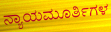
ನ್ಯಾಯಮೂರ್ತಿಗಳ